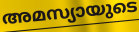
അമസ്യായുടെ